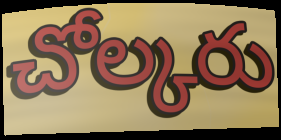
చోల్కరు